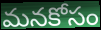
మనకోసం